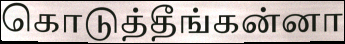
கொடுத்தீங்கன்னா